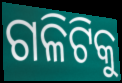
ଗଳିଟିକୁ